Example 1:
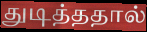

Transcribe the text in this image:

துடித்ததால்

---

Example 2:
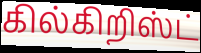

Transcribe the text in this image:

கில்கிறிஸ்ட்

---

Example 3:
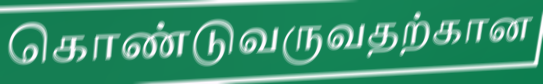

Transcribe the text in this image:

கொண்டுவருவதற்கான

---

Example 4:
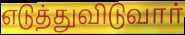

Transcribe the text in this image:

எடுத்துவிடுவார்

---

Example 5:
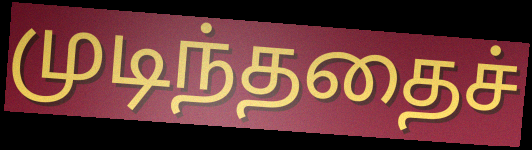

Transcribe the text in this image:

முடிந்ததைச்